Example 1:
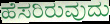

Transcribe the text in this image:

ಹೆಸರಿರುವುದು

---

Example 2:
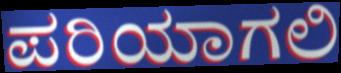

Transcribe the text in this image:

ಪರಿಯಾಗಲಿ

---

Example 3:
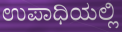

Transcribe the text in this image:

ಉಪಾಧಿಯಲ್ಲಿ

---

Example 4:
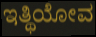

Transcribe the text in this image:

ಇತ್ಥಿಯೋವ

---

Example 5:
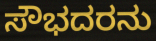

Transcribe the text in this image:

ಸೌಭದರನು